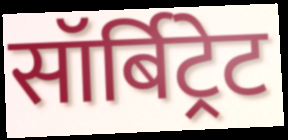
सॉर्बिट्रेट